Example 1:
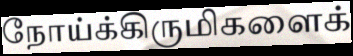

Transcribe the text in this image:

நோய்க்கிருமிகளைக்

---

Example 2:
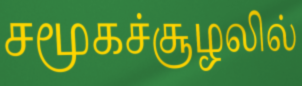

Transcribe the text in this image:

சமூகச்சூழலில்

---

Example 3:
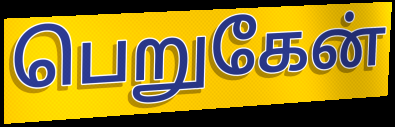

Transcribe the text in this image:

பெறுகேன்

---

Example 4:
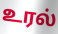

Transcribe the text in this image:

உரல்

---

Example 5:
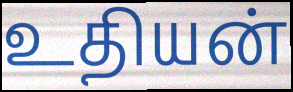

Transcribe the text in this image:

உதியன்